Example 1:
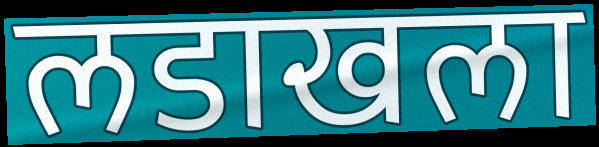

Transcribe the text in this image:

लडाखला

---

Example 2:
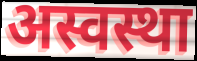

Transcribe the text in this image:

अस्वस्था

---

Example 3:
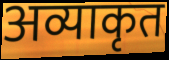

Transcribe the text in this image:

अव्याकृत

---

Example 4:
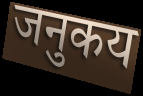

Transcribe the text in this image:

जनुकय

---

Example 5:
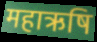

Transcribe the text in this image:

महाऋषि